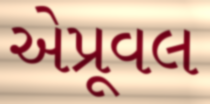
એપ્રૂવલ